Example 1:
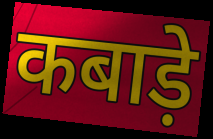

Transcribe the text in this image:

कबाड़े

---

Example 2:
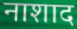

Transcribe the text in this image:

नाशाद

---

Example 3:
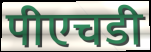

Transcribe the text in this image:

पीएचडी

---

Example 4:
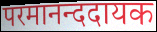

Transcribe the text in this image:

परमानन्ददायक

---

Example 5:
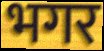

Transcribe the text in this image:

भगर